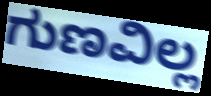
ಗುಣವಿಲ್ಲ